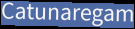
Catunaregam